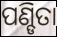
ପଣ୍ଡିତା